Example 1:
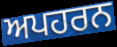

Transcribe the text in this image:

ਅਪਹਰਨ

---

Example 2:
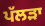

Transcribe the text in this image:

ਪੱਲੜਾ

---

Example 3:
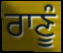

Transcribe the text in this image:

ਰਾਣੂੰ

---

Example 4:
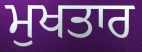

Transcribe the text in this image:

ਮੁਖਤਾਰ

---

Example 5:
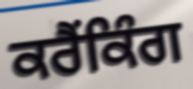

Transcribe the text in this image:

ਕਰੈਂਕਿੰਗ